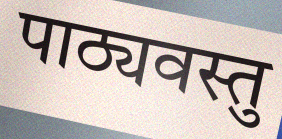
पाठ्यवस्तु